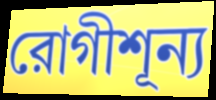
রোগীশূন্য